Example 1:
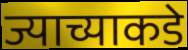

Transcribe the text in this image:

ज्याच्याकडे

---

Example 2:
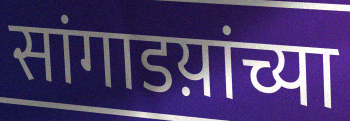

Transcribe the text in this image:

सांगाडय़ांच्या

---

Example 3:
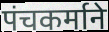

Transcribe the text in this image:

पंचकर्माने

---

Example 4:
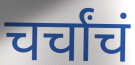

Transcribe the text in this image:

चर्चांचं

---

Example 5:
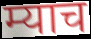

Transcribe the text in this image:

म्याच